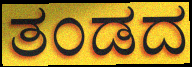
ತಂಡದ